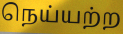
நெய்யற்ற